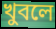
খুবলে